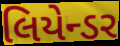
લિયેન્ડર